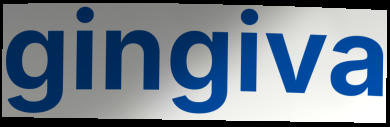
gingiva